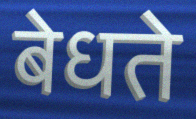
बेधते